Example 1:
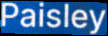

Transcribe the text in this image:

Paisley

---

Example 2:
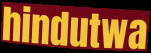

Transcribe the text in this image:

hindutwa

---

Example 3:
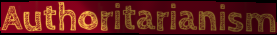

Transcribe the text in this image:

Authoritarianism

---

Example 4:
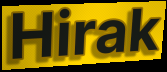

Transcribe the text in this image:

Hirak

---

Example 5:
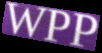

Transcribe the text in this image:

WPP